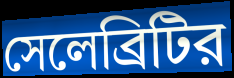
সেলেব্রিটির